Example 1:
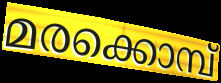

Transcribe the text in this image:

മരക്കൊമ്പ്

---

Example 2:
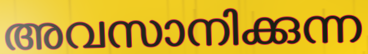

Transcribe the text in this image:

അവസാനിക്കുന്ന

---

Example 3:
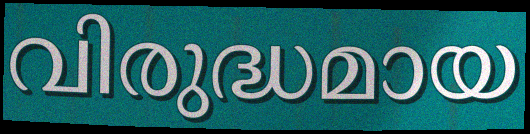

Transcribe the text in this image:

വിരുദ്ധമായ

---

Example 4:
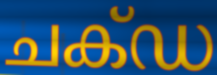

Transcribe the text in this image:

ചക്ഡ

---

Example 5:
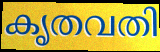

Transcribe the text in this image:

കൃതവതി